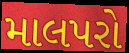
માલપરો